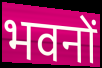
भवनों